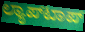
ಲ್ಯಾಪ್‌ಟಾಪ್